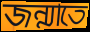
জন্মাতে